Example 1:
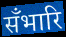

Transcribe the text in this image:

सँभारि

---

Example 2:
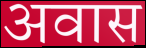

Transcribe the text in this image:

अवास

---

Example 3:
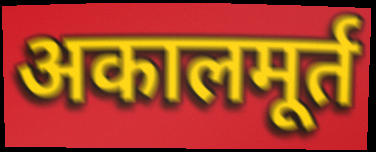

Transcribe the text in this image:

अकालमूर्त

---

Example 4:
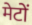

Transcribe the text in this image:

मेटों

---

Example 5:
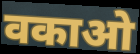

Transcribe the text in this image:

वकाओ